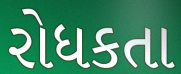
રોધકતા